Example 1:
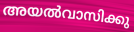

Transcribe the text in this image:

അയൽവാസിക്കു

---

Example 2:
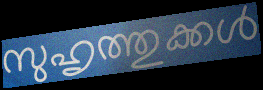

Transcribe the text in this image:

സുഹൃത്തുക്കൾ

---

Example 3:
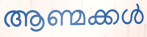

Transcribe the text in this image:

ആണ്മക്കൾ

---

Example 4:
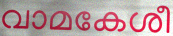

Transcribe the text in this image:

വാമകേശീ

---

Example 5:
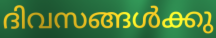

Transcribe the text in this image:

ദിവസങ്ങൾക്കു